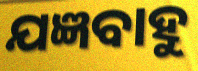
ଯଜ୍ଞବାହୁ